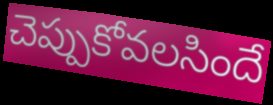
చెప్పుకోవలసిందే